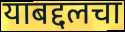
याबद्दलचा